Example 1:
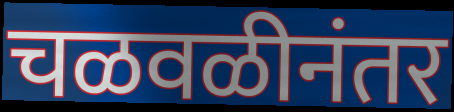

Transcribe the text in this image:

चळवळीनंतर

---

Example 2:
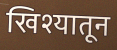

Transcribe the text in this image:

खिश्यातून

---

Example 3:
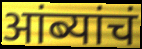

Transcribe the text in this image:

आंब्यांचं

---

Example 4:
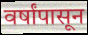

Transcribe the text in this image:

वर्षांपासून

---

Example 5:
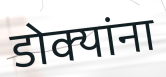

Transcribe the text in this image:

डोक्यांना